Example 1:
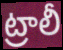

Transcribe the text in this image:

ట్రాలీ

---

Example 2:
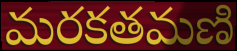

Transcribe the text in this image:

మరకతమణి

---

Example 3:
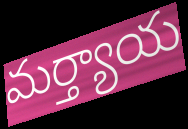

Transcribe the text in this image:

మర్త్యాయ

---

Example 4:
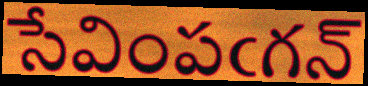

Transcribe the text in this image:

సేవింపఁగన్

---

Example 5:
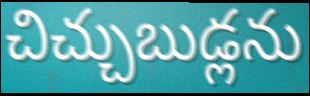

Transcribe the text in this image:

చిచ్చుబుడ్లను